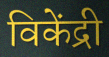
विकेंद्री